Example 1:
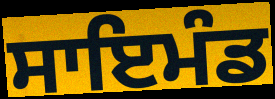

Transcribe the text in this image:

ਸਾਇਮੰਡ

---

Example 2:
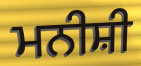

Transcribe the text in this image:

ਮਨੀਸ਼ੀ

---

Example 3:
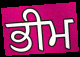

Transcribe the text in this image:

ਭੀਮ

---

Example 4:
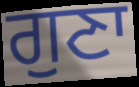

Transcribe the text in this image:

ਗੁਣਾ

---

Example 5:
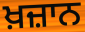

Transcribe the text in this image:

ਖ਼ਜ਼ਾਨ